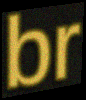
br